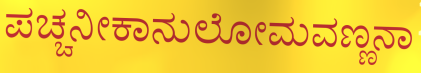
ಪಚ್ಚನೀಕಾನುಲೋಮವಣ್ಣನಾ